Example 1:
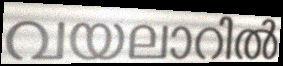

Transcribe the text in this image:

വയലാറിൽ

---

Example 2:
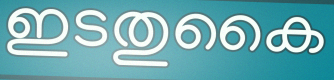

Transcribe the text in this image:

ഇടതുകൈ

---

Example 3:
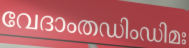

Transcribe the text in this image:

വേദാംതഡിംഡിമഃ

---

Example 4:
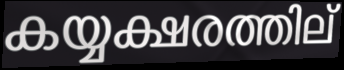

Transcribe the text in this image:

കയ്യക്ഷരത്തില്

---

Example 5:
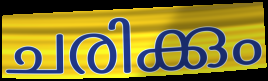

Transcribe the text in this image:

ചരിക്കും